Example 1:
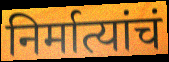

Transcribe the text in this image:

निर्मात्यांचं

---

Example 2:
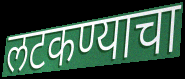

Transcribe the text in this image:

लटकण्याचा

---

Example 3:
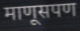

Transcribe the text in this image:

माणूसपण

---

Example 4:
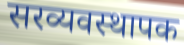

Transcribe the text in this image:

सरव्यवस्थापक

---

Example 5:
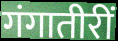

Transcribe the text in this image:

गंगातीरीं